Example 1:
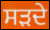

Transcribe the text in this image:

ਸੜਦੇ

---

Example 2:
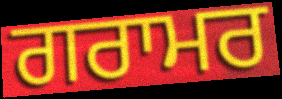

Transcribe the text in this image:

ਗਰਾਮਰ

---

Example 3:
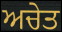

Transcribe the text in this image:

ਅਚੇਤ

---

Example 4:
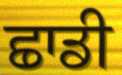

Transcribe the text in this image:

ਛਾਡੀ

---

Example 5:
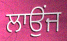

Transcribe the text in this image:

ਲਾਉਂਜ